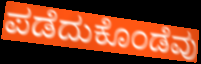
ಪಡೆದುಕೊಂಡೆವು